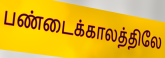
பண்டைக்காலத்திலே